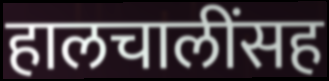
हालचालींसह